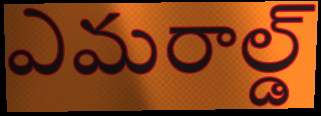
ఎమరాల్డ్